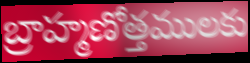
బ్రాహ్మణోత్తములకు